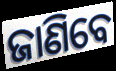
ଜାଣିବେ